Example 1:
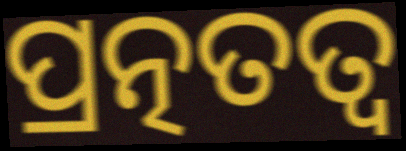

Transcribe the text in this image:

ପ୍ରତ୍ନତତ୍ୱ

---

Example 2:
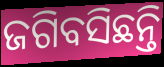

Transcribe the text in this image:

ଜଗିବସିଛନ୍ତି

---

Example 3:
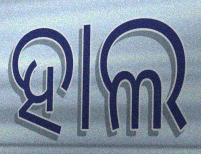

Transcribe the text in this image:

ହାଲ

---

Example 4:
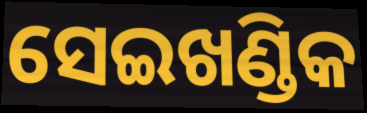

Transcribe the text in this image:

ସେଇଖଣ୍ଡିକ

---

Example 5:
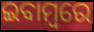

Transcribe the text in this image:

ଇବାମ୍ବରେ